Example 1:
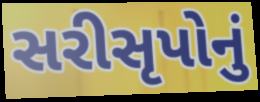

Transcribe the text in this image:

સરીસૃપોનું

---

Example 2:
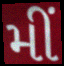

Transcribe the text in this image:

મીં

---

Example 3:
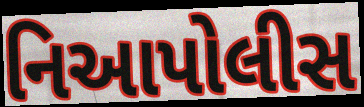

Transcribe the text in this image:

નિઆપોલીસ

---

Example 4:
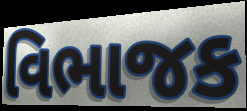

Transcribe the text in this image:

વિભાજક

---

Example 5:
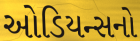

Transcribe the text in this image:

ઓડિયન્સનો